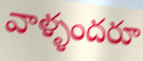
వాళ్ళందరూ